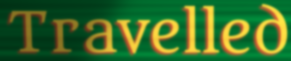
Travelled